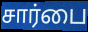
சார்பை